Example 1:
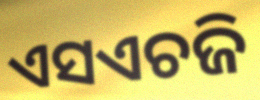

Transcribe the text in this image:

ଏସଏଚଜି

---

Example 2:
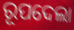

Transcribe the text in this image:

ରୂପଦେଲା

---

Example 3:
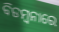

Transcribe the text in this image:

ବିଡମ୍ବନାରେ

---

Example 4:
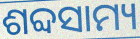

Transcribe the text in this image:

ଶବ୍ଦସାମ୍ୟ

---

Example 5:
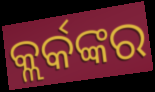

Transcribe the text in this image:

କ୍ଲର୍କଙ୍କର